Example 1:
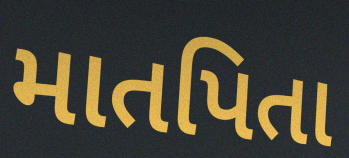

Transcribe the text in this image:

માતપિતા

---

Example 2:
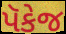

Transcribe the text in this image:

પૅકેજ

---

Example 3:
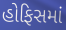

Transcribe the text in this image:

હોફિસમાં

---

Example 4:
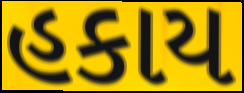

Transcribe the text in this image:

હકાય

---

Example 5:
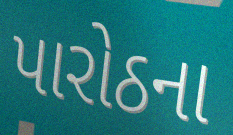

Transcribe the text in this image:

પારોઠના